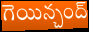
గెయిన్చంద్